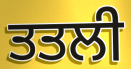
ਤਤਲੀ